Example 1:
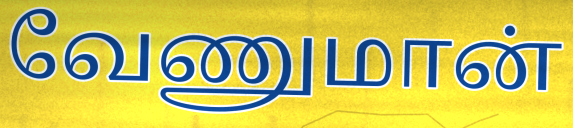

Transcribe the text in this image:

வேணுமான்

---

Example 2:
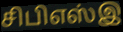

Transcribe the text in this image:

சிபிஎஸ்இ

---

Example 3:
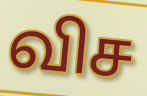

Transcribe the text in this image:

விச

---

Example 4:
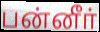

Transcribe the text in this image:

பன்னீர்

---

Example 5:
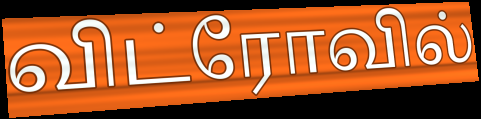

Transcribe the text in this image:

விட்ரோவில்